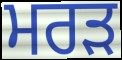
ਮਰੜ